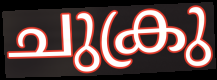
ചുക്രു